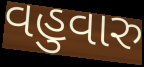
વહુવારુ